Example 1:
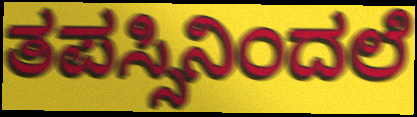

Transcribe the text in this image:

ತಪಸ್ಸಿನಿಂದಲೆ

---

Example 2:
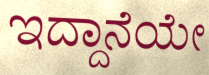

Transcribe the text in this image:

ಇದ್ದಾನೆಯೇ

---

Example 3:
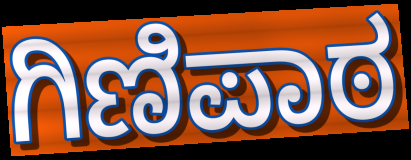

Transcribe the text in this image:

ಗಿಣಿಪಾಠ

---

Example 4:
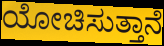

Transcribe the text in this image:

ಯೋಚಿಸುತ್ತಾನೆ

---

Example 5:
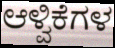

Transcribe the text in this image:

ಆಳ್ವಿಕೆಗಳ